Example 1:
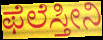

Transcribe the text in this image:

ಫೆಲೆಸ್ತೀನಿ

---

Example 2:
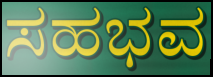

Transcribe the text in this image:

ಸಹಭವ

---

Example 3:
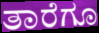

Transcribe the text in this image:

ತಾರೆಗೂ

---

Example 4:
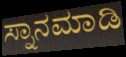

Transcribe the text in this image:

ಸ್ನಾನಮಾಡಿ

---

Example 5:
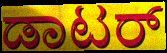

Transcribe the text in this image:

ಡಾಟರ್